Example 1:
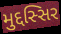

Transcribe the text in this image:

મુદ્દસ્સિર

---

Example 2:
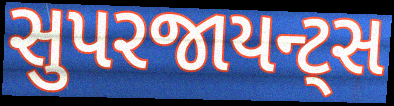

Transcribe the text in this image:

સુપરજાયન્ટ્સ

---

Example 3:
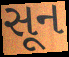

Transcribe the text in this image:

સૂન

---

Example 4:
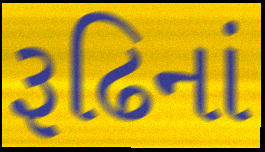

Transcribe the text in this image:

રૂઢિનાં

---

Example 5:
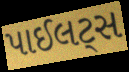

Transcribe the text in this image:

પાઈલટ્સ